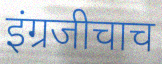
इंग्रजीचाच